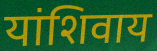
यांशिवाय